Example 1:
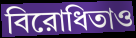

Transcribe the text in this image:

বিরোধিতাও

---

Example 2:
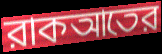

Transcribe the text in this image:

রাকআতের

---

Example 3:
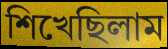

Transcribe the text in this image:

শিখেছিলাম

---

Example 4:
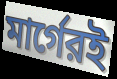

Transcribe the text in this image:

মার্গেরই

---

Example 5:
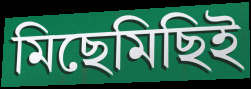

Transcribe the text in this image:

মিছেমিছিই